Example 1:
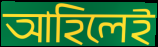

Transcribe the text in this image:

আহিলেই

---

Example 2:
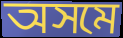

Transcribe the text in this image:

অসমে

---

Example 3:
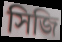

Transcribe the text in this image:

সিজি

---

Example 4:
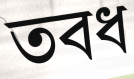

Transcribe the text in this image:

তবধ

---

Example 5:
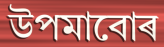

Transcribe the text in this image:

উপমাবোৰ